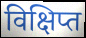
विक्षिप्त